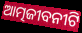
ଆତ୍ମଜୀବନୀଟି